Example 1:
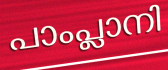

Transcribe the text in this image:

പാംപ്ലാനി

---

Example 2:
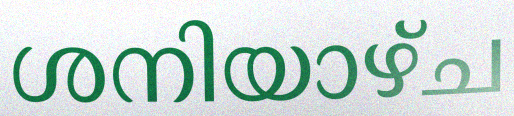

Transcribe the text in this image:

ശനിയാഴ്ച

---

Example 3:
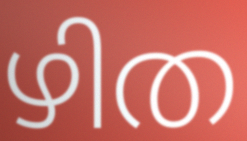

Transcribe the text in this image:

ഴിത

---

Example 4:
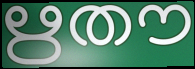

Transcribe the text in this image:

ഋതൗ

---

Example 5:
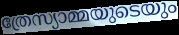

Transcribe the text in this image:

ത്രേസ്യാമ്മയുടെയും